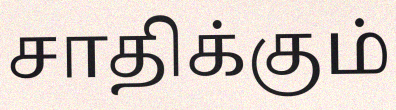
சாதிக்கும்